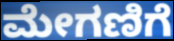
ಮೇಗಣಿಗೆ